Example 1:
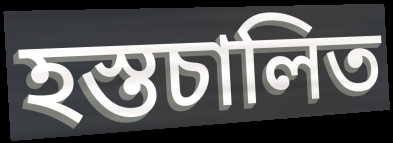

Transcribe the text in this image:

হস্তচালিত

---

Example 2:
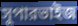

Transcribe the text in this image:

সুপারভাইজ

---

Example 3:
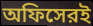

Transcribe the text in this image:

অফিসেরই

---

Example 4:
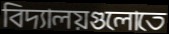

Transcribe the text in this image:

বিদ্যালয়গুলোতে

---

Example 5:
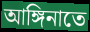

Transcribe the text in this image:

আঙ্গিনাতে